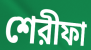
শেরীফা